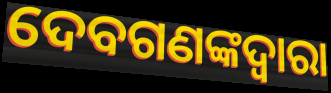
ଦେବଗଣଙ୍କଦ୍ୱାରା